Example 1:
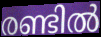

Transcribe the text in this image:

രണ്ടിൽ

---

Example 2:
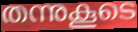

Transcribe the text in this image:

തന്നുകൂടെ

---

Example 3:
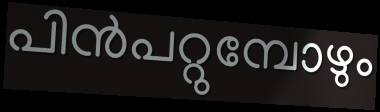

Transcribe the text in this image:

പിൻപറ്റുമ്പോഴും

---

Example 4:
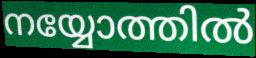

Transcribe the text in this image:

നയ്യോത്തിൽ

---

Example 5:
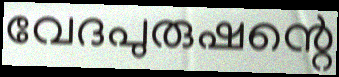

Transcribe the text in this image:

വേദപുരുഷന്റെ